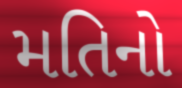
મતિનો